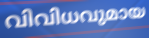
വിവിധവുമായ